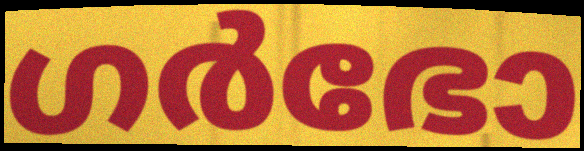
ഗർഭോ